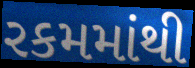
રકમમાંથી